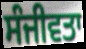
ਸੰਜੀਵਤਾ